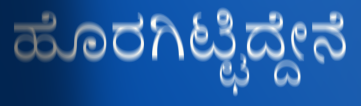
ಹೊರಗಿಟ್ಟಿದ್ದೇನೆ